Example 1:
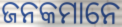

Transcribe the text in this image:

ଜନକମାନେ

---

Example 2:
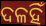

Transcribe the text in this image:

ଦଳହିଁ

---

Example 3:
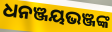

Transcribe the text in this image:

ଧନଞ୍ଜୟଭଞ୍ଜଙ୍କ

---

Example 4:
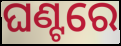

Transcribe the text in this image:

ଘଣ୍ଟରେ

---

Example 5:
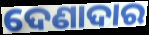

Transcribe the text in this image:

ଦେଣାଦାର